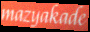
mazyakade